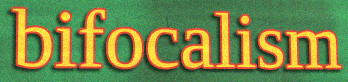
bifocalism